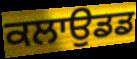
ਕਲਾਉਡਡ